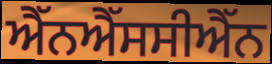
ਐੱਨਐੱਸਸੀਐੱਨ